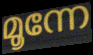
മൂന്നേ